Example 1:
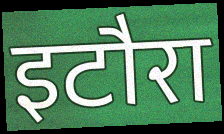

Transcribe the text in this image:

इटौरा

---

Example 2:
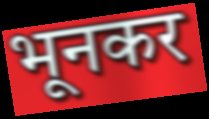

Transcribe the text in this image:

भूनकर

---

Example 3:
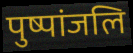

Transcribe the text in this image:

पुष्पांजलि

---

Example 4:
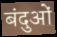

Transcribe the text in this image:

बंदुओं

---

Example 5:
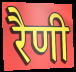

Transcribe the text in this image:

रैणी